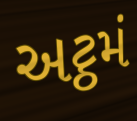
અટ્ઠમં